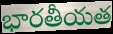
భారతీయత